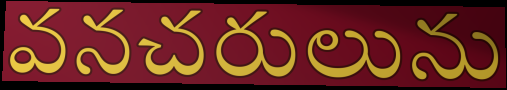
వనచరులును